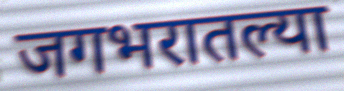
जगभरातल्या